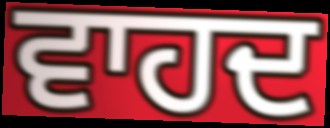
ਵਾਹਦ